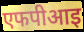
एफपीआइ